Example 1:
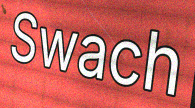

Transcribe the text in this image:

Swach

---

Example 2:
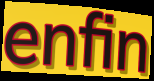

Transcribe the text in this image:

enfin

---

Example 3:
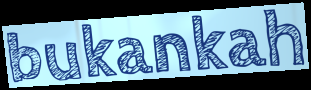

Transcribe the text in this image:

bukankah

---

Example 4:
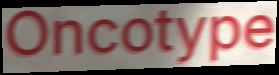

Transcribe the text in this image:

Oncotype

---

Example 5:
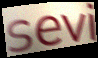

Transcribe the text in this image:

sevi